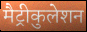
मैट्रीकुलेशन